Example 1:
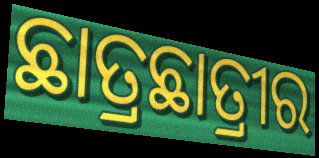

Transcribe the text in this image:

ଛାତ୍ରଛାତ୍ରୀର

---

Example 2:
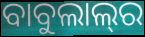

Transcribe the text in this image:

ବାବୁଲାଲ୍‍ର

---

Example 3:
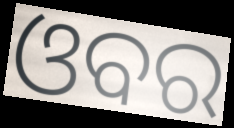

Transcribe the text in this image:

ଓବର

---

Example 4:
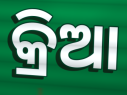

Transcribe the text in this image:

କ୍ରିଆ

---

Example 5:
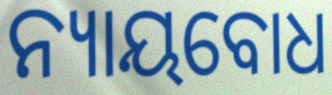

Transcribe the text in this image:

ନ୍ୟାୟବୋଧ